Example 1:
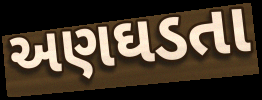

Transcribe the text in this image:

અણઘડતા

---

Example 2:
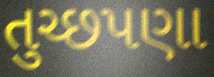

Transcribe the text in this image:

તુચ્છપણા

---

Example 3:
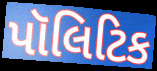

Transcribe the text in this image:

પૉલિટિક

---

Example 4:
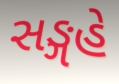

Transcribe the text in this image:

સઙ્ગહે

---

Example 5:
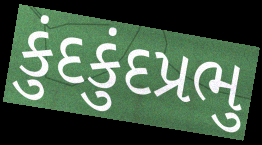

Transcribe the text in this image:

કુંદકુંદપ્રભુ